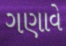
ગણાવે